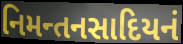
નિમન્તનસાદિયનં